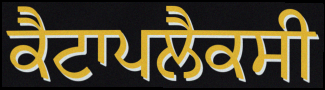
ਕੈਟਾਪਲੈਕਸੀ